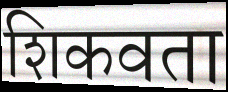
शिकवता